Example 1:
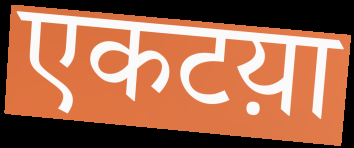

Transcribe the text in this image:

एकटय़ा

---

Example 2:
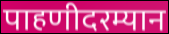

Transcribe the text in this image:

पाहणीदरम्यान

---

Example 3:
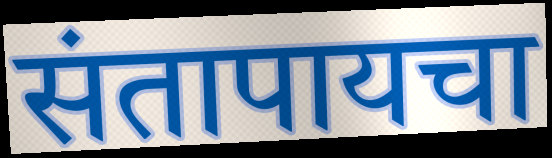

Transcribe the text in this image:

संतापायचा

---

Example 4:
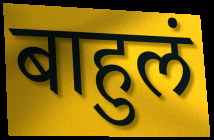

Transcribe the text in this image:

बाहुलं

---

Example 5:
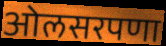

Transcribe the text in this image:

ओलसरपणा